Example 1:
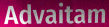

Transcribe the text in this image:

Advaitam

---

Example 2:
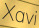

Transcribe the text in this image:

Xavi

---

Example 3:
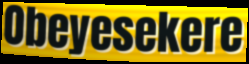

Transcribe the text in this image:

Obeyesekere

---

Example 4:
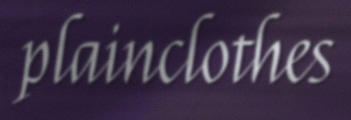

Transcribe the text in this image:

plainclothes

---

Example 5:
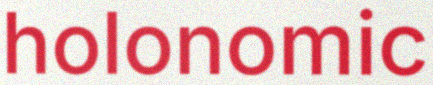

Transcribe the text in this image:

holonomic